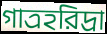
গাত্রহরিদ্রা